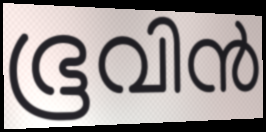
ഭൂവിൻ